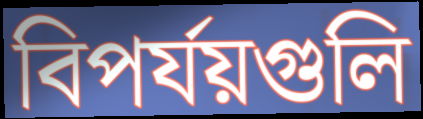
বিপর্যয়গুলি